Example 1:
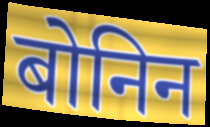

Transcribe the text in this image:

बोनिन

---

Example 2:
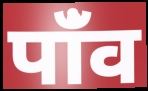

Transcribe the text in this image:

पांँव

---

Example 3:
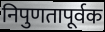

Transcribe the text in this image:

निपुणतापूर्वक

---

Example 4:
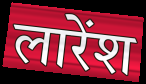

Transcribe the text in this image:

लारेंश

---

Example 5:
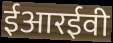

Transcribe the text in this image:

ईआरईवी